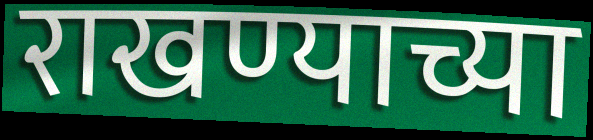
राखण्याच्या